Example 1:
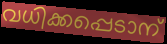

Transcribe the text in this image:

വധിക്കപ്പെടാന്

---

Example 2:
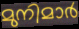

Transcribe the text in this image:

മുനിമാർ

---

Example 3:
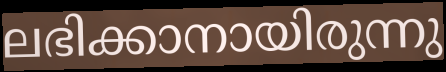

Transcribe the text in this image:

ലഭിക്കാനായിരുന്നു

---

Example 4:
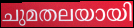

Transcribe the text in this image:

ചുമതലയായി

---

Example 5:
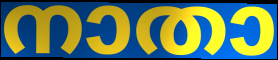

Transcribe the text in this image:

നാതാ